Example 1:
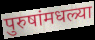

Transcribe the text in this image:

पुरुषांमधल्या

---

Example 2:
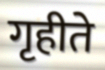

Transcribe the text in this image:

गृहीते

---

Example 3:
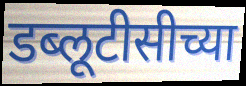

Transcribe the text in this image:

डब्लूटीसीच्या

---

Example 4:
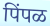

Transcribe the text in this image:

पिंपळ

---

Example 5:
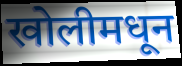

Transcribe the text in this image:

खोलीमधून